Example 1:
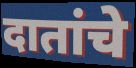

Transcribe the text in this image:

दातांचे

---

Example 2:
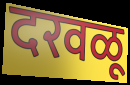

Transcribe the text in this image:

दरवळू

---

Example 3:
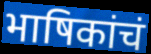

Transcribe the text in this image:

भाषिकांचं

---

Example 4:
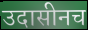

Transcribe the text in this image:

उदासीनच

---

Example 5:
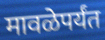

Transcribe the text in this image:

मावळेपर्यंत